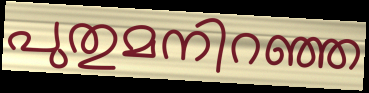
പുതുമനിറഞ്ഞ